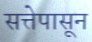
सत्तेपासून